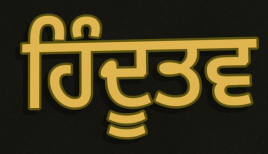
ਹਿੰਦੂਤਵ